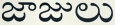
జాజులు